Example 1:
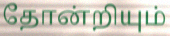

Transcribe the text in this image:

தோன்றியும்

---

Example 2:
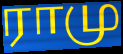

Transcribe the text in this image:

ராமு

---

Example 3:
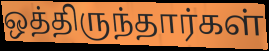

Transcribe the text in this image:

ஒத்திருந்தார்கள்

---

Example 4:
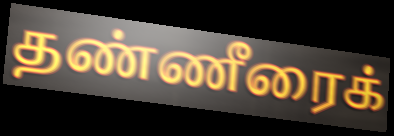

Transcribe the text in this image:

தண்ணீரைக்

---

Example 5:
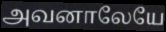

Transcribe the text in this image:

அவனாலேயே